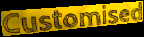
Customised